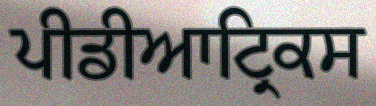
ਪੀਡੀਆਟ੍ਰਿਕਸ